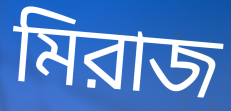
মিরাজ